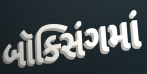
બૉક્સિંગમાં